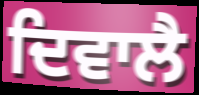
ਦਿਵਾਲੈ